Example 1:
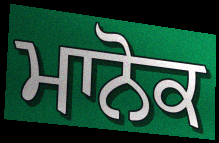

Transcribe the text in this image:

ਮਾਨੋਕ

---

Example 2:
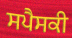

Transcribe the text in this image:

ਸਪੈਸਕੀ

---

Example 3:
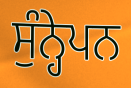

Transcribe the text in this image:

ਸੁੰਨ੍ਹੇਪਨ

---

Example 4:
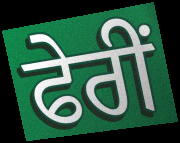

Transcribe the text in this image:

ਫੇਰੀਂ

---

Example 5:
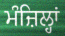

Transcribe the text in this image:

ਮੰਜ਼ਿਲ੍ਹਾਂ